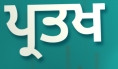
ਪ੍ਰਤਖ